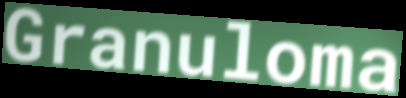
Granuloma